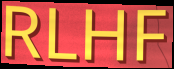
RLHF